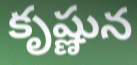
కృష్ణున